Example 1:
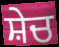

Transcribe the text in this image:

ਸ਼ੇਚ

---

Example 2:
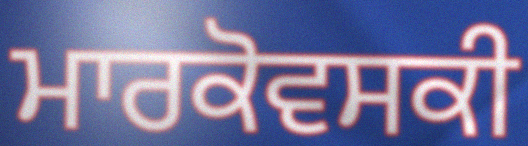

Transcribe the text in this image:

ਮਾਰਕੋਵਸਕੀ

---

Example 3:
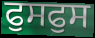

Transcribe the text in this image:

ਫੁਸਫੁਸ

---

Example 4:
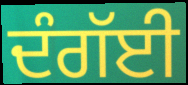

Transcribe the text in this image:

ਦੰਗੱਈ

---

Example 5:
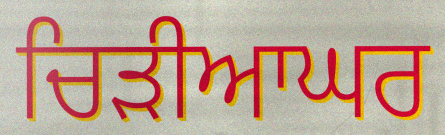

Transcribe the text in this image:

ਚਿੜੀਆਘਰ